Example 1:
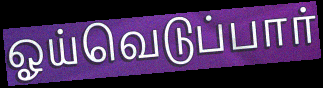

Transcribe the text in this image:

ஓய்வெடுப்பார்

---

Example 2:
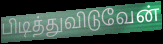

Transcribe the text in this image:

பிடித்துவிடுவேன்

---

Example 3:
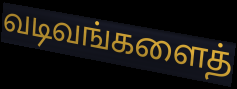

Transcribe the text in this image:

வடிவங்களைத்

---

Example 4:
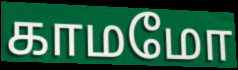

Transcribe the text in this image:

காமமோ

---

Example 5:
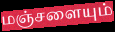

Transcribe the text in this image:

மஞ்சளையும்